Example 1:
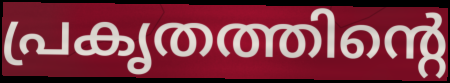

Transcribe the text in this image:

പ്രകൃതത്തിന്റെ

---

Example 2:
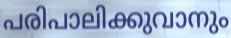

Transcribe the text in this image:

പരിപാലിക്കുവാനും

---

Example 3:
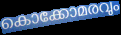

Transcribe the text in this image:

കൊക്കോമരവും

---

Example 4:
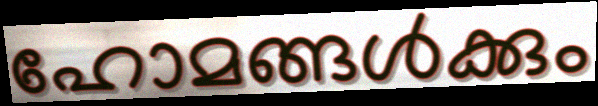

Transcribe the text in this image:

ഹോമങ്ങൾക്കും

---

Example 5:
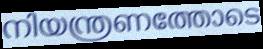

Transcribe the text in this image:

നിയന്ത്രണത്തോടെ